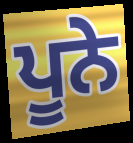
ਪੂਨੇ